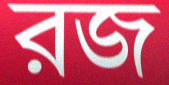
রজ